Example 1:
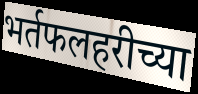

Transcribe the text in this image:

भर्तफलहरीच्या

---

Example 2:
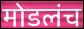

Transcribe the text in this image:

मोडलंच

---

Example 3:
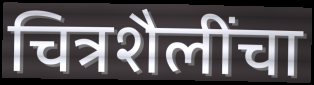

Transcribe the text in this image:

चित्रशैलींचा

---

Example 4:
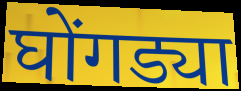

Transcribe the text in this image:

घोंगड्या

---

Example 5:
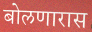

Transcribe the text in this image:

बोलणारास